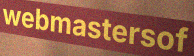
webmastersof